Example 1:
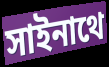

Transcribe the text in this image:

সাইনাথে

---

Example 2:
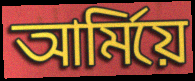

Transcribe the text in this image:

আৰ্মিয়ে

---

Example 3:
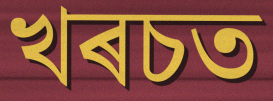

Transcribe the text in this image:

খৰচত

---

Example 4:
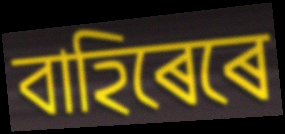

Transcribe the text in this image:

বাহিৰেৰে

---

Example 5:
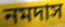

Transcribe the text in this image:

নমদাস